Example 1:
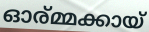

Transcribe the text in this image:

ഓര്മ്മക്കായ്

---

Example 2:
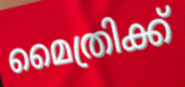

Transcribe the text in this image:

മൈത്രിക്ക്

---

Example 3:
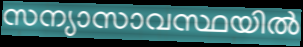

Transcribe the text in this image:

സന്യാസാവസ്ഥയിൽ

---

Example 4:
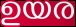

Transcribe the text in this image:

ഉയര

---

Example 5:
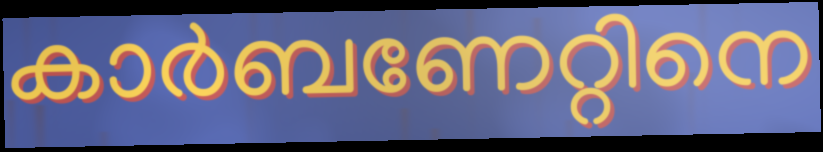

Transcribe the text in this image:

കാർബണേറ്റിനെ